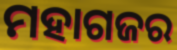
ମହାଗଜର